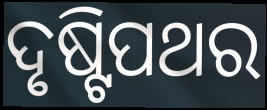
ଦୃଷ୍ଟିପଥର